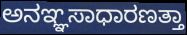
ಅನಞ್ಞಸಾಧಾರಣತ್ತಾ